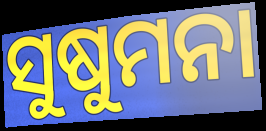
ସୁଷୁମନା